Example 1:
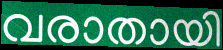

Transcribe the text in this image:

വരാതായി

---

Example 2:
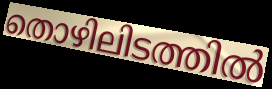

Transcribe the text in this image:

തൊഴിലിടത്തിൽ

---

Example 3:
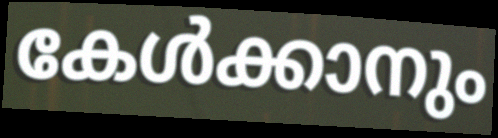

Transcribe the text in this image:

കേൾക്കാനും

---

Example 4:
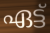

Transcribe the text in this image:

ഏട്ട്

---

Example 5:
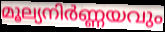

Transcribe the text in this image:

മൂല്യനിർണ്ണയവും